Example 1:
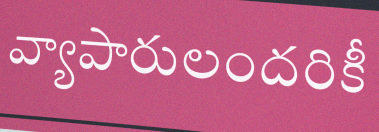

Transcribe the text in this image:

వ్యాపారులందరికీ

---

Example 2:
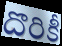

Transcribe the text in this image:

దొరికీ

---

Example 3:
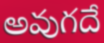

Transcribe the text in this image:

అవుగదే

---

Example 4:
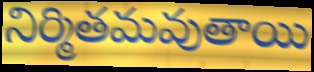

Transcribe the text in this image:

నిర్మితమవుతాయి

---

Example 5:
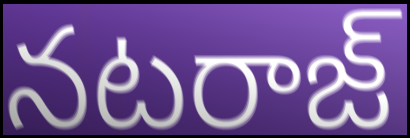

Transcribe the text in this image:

నటరాజ్